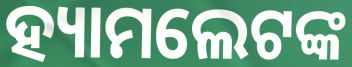
ହ୍ୟାମଲେଟଙ୍କ